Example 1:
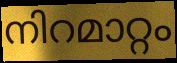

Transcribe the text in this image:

നിറമാറ്റം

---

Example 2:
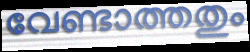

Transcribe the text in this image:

വേണ്ടാത്തതും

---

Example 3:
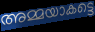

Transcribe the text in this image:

അമ്മയാകട്ടെ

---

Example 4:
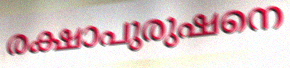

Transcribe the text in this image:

രക്ഷാപുരുഷനെ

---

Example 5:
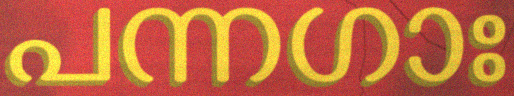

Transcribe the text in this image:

പന്നഗാഃ